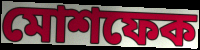
মোশফেক